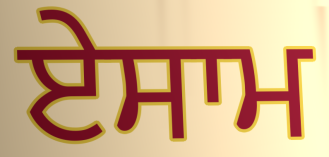
ਏਸਾਮ